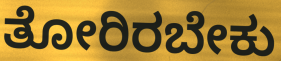
ತೋರಿರಬೇಕು